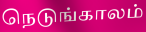
நெடுங்காலம்